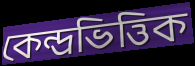
কেন্দ্রভিত্তিক